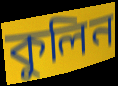
কুলিন